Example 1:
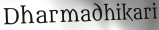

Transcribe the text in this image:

Dharmadhikari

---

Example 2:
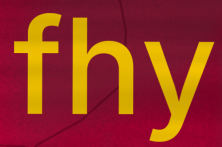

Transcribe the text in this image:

fhy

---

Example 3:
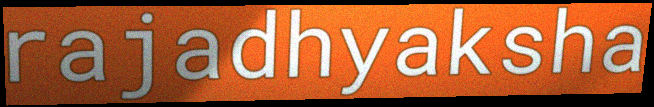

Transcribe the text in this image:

rajadhyaksha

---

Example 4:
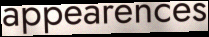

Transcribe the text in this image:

appearences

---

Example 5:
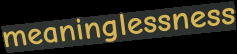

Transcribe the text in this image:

meaninglessness